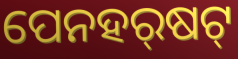
ପେନହର୍‍ଷଟ୍